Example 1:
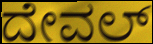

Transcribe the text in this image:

ದೇವಲ್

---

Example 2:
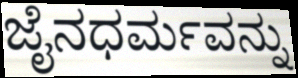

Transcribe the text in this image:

ಜೈನಧರ್ಮವನ್ನು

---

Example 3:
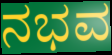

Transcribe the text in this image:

ನಭವ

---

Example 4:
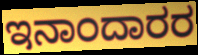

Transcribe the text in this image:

ಇನಾಂದಾರರ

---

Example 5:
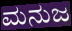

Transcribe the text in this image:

ಮನುಜ